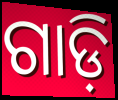
ଗାଡ଼ି